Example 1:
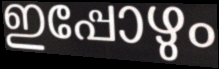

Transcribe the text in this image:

ഇപ്പോഴും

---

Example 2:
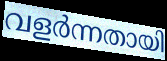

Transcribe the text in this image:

വളർന്നതായി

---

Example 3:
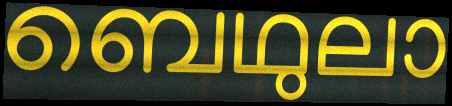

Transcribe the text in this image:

ബെഥുലാ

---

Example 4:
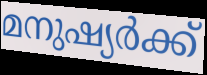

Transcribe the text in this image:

മനുഷ്യർക്ക്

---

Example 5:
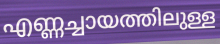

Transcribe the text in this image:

എണ്ണച്ചായത്തിലുള്ള